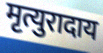
मृत्युरादाय